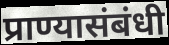
प्राण्यासंबंधी